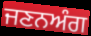
ਜਣਨਅੰਗ